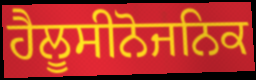
ਹੈਲੂਸੀਨੋਜਨਿਕ